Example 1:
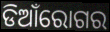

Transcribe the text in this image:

ଡିଆଁରୋଗର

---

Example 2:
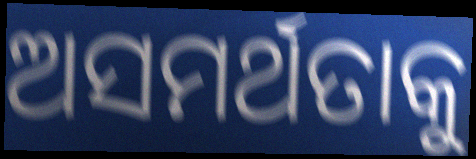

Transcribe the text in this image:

ଅସମର୍ଥତାକୁ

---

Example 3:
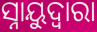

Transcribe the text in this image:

ସ୍ନାୟୁଦ୍ଵାରା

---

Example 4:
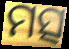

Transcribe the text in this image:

ମତ୍ସ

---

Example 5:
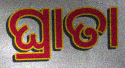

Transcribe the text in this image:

ଘ୍ରାତା